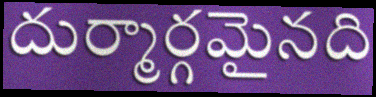
దుర్మార్గమైనది